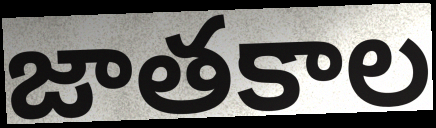
జాతకాల